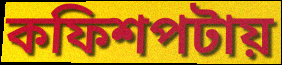
কফিশপটায়